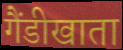
गैंडीखाता